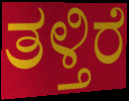
ತಳ್ತಿರೆ